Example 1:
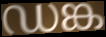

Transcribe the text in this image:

ഡങ്ക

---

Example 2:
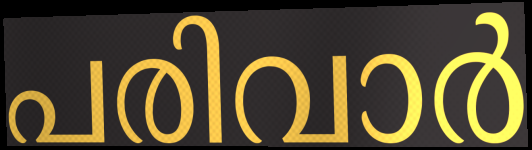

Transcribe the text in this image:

പരിവാർ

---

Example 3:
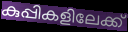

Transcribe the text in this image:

കുപ്പികളിലേക്ക്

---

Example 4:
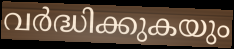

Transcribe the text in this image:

വർദ്ധിക്കുകയും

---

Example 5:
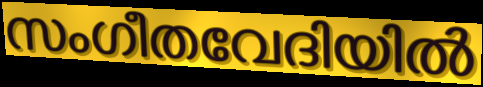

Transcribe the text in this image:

സംഗീതവേദിയിൽ